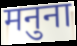
मनुना